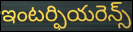
ఇంటర్ఫియరెన్స్